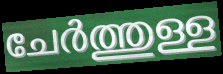
ചേർത്തുള്ള